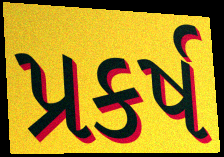
પ્રકર્ષ